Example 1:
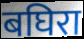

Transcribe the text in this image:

बघिरा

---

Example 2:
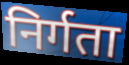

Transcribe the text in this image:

निर्गता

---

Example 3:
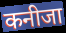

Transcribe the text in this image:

कनीजा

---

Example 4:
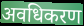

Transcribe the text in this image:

अवधिकरण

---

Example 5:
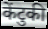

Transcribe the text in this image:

केंटुकी